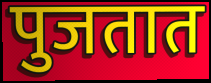
पुजतात